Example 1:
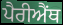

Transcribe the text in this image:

ਪੈਰੀਐਂਥ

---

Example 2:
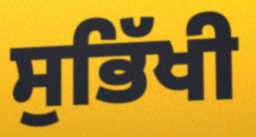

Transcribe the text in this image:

ਸੁਭਿੱਖੀ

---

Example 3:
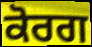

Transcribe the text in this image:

ਕੋਰਗ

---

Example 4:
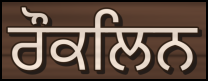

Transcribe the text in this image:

ਰੌਕਲਿਨ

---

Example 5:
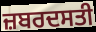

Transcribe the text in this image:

ਜ਼ਬਰਦਸਤੀ